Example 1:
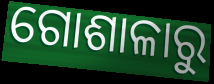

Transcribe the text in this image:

ଗୋଶାଳାରୁ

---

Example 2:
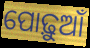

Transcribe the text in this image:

ପୋଢ଼ୁଆଁ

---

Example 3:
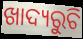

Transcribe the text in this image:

ଖାଦ୍ୟରୁଚି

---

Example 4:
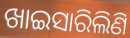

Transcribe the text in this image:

ଖାଇସାରିଲିଣି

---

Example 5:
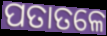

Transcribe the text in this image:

ପତାତଳେ